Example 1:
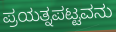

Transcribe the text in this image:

ಪ್ರಯತ್ನಪಟ್ಟವನು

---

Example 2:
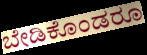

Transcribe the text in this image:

ಬೇಡಿಕೊಂಡರೂ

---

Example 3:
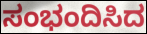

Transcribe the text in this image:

ಸಂಭಂದಿಸಿದ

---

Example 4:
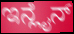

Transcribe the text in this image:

ಇನ್ಲೈನ್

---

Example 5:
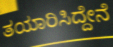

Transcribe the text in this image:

ತಯಾರಿಸಿದ್ದೇನೆ